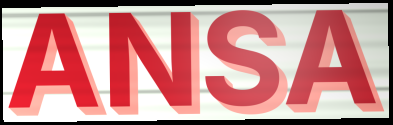
ANSA